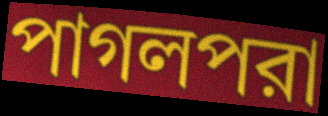
পাগলপরা